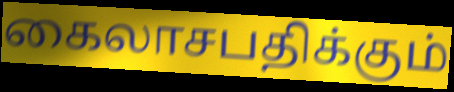
கைலாசபதிக்கும்